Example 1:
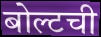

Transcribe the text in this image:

बोल्टची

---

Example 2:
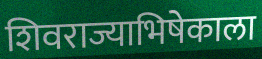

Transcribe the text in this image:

शिवराज्याभिषेकाला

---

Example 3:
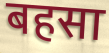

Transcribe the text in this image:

बहसा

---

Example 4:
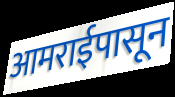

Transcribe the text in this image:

आमराईपासून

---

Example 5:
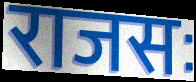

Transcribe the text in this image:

राजसः